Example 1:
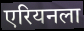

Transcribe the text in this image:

एरियनला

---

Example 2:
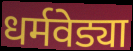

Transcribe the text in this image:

धर्मवेड्या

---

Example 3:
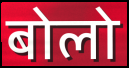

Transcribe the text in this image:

बोलो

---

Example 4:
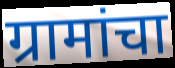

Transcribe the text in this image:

ग्रामांचा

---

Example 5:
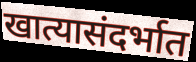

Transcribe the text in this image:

खात्यासंदर्भात